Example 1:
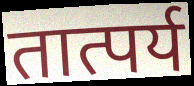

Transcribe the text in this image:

तात्पर्य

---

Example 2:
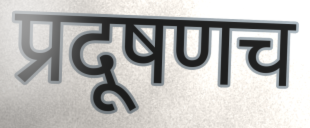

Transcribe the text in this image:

प्रदूषणच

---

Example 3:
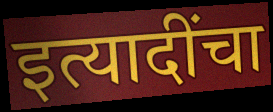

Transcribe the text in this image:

इत्यादींचा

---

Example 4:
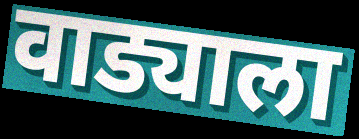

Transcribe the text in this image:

वाड्याला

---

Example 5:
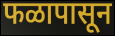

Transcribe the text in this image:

फळापासून